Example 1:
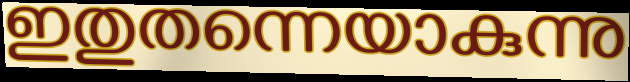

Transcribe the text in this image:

ഇതുതന്നെയാകുന്നു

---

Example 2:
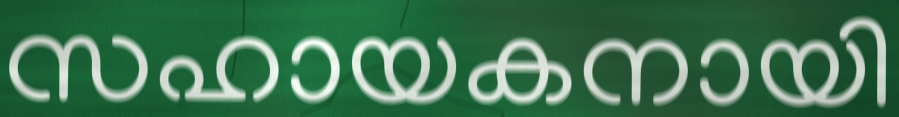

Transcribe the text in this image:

സഹായകനായി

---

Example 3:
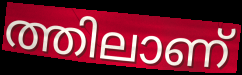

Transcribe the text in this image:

ത്തിലാണ്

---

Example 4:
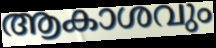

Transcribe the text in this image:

ആകാശവും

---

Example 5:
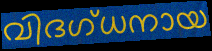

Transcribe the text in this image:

വിദഗ്ധനായ